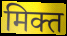
मिक्त